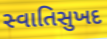
સ્વાતિસુખદ